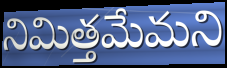
నిమిత్తమేమని